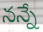
నన్నే